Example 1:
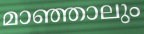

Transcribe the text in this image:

മാഞ്ഞാലും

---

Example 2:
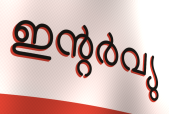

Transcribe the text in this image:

ഇന്റർവ്യു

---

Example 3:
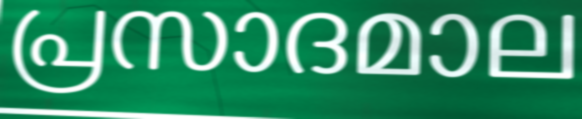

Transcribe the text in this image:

പ്രസാദമാല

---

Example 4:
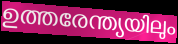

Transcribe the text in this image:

ഉത്തരേന്ത്യയിലും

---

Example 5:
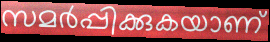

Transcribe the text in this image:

സമർപ്പിക്കുകയാണ്